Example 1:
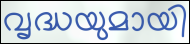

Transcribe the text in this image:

വൃദ്ധയുമായി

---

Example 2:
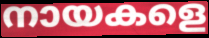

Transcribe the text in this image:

നായകളെ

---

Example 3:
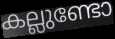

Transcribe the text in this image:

കല്ലുണ്ടോ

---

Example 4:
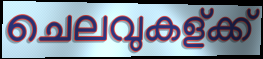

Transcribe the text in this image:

ചെലവുകള്ക്ക്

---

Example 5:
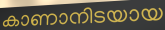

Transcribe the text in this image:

കാണാനിടയായ